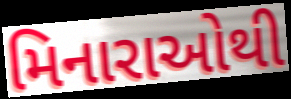
મિનારાઓથી